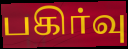
பகிர்வு